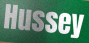
Hussey